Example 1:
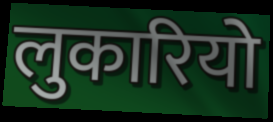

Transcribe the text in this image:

लुकारियो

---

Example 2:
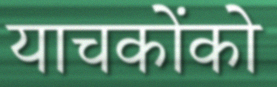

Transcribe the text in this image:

याचकोंको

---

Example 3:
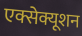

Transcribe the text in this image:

एक्सेक्यूशन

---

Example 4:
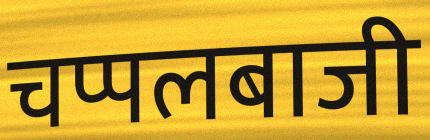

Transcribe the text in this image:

चप्पलबाजी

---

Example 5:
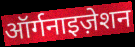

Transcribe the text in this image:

ऑर्गनाइज़ेशन